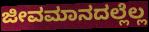
ಜೀವಮಾನದಲ್ಲೆಲ್ಲ